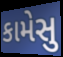
કામેસુ